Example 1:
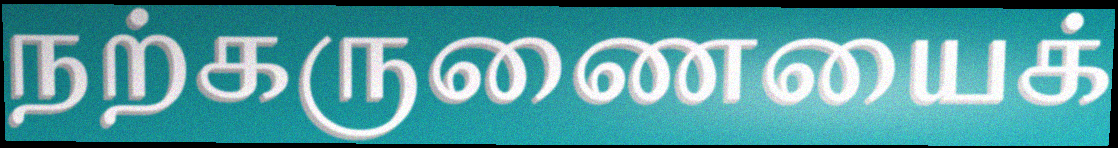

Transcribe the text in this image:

நற்கருணையைக்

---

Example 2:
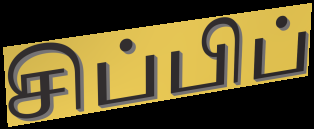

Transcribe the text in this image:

சிப்பிப்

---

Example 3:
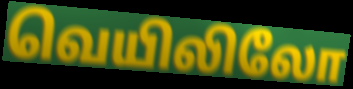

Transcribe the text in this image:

வெயிலிலோ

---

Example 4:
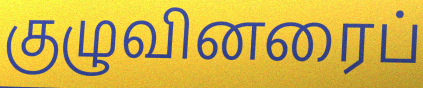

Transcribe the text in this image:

குழுவினரைப்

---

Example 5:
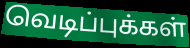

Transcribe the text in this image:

வெடிப்புக்கள்